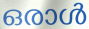
ഒരാൾ